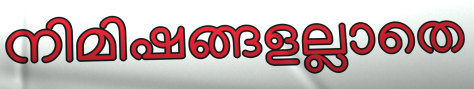
നിമിഷങ്ങളല്ലാതെ